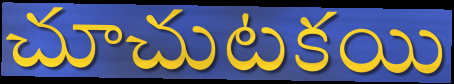
చూచుటకయి